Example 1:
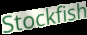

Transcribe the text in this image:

Stockfish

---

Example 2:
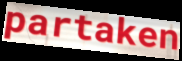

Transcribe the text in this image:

partaken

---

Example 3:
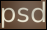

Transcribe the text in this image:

psd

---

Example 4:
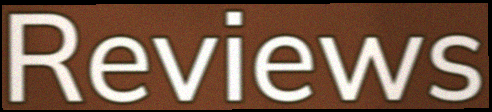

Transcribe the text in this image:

Reviews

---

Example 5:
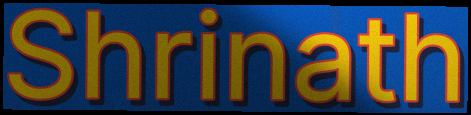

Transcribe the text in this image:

Shrinath